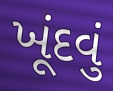
ખૂંદવું